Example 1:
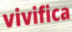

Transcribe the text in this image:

vivifica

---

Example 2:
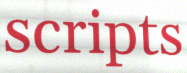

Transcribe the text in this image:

scripts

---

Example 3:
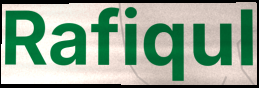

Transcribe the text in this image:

Rafiqul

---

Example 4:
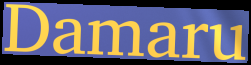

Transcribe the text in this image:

Damaru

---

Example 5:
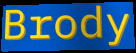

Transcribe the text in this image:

Brody